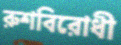
রুশবিরোধী